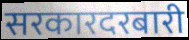
सरकारदरबारी